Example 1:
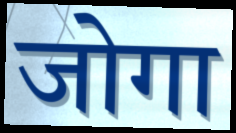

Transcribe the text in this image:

जोगा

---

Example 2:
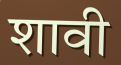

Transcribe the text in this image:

शावी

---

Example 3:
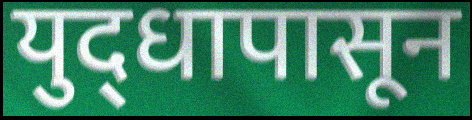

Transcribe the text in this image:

युद्धापासून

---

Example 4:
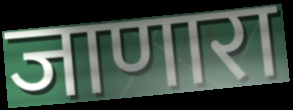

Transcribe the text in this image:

जाणारा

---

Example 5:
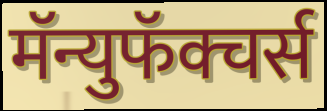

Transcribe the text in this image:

मॅन्युफॅक्चर्स